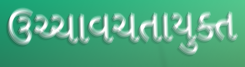
ઉચ્ચાવચતાયુક્ત